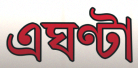
এঘণ্টা